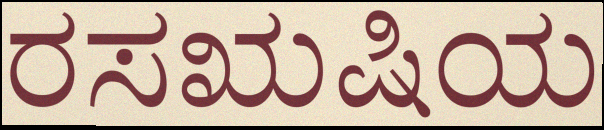
ರಸಋಷಿಯ